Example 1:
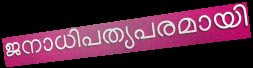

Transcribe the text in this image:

ജനാധിപത്യപരമായി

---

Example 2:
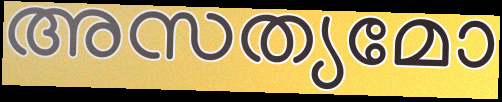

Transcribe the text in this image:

അസത്യമോ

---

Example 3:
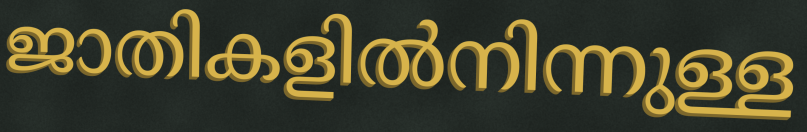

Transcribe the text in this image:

ജാതികളിൽനിന്നുള്ള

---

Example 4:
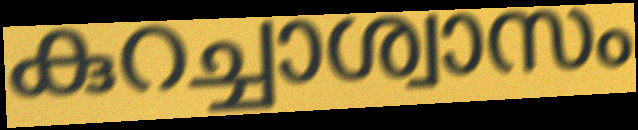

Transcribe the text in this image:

കുറച്ചാശ്വാസം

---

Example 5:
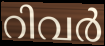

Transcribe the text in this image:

റിവർ